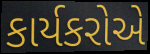
કાર્યકરોએ